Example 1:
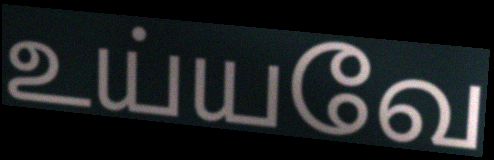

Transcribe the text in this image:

உய்யவே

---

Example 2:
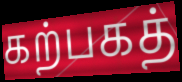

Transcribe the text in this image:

கற்பகத்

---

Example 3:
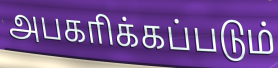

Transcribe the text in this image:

அபகரிக்கப்படும்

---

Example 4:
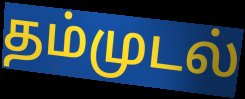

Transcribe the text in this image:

தம்முடல்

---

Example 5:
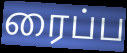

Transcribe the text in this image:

ரைப்ப